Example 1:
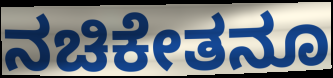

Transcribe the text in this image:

ನಚಿಕೇತನೂ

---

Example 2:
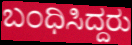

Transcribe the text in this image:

ಬಂಧಿಸಿದ್ದರು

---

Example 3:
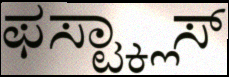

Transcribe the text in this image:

ಫಸ್ಟ್ಕ್ಲಾಸ್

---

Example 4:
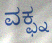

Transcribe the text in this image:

ವಕ್ಫ್ನ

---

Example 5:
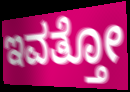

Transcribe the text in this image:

ಇವತ್ತೋ